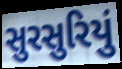
સુરસુરિયું